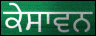
ਕੇਸਾਵਨ